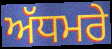
ਅੱਧਮਰੇ